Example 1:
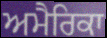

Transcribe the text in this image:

ਅਮੈਰਿਕਾ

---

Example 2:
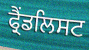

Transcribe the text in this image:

ਫ੍ਰੈਂਡਲਿਸਟ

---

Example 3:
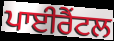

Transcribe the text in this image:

ਪਾਈਰੈਂਟਲ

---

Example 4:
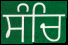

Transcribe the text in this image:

ਸੰਚਿ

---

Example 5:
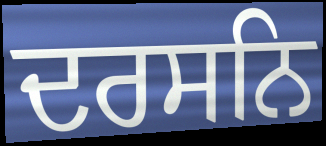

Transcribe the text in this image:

ਦਰਸਨਿ